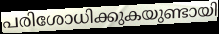
പരിശോധിക്കുകയുണ്ടായി